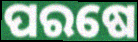
ପରଷେ